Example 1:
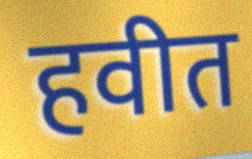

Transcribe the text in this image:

हवीत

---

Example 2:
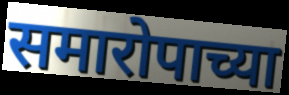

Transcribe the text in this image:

समारोपाच्या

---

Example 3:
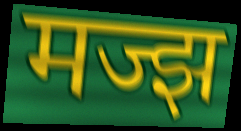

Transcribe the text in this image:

मज्झ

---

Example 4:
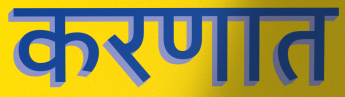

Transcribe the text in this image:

करणात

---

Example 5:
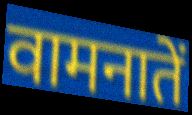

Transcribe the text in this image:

वामनातें